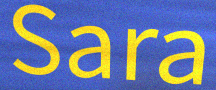
Sara